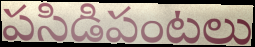
పసిడిపంటలు